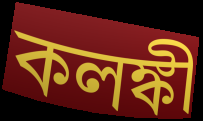
কলঙ্কী